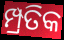
ମ୍ପ୍ରତିକ